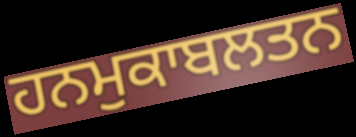
ਹਨਮੁਕਾਬਲਤਨ